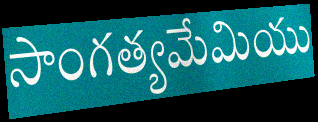
సాంగత్యమేమియు